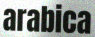
arabica